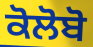
ਕੋਲੋਬੋ